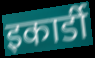
इकार्डी